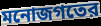
মনোজগতের